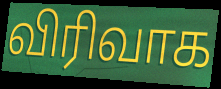
விரிவாக